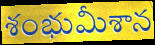
శంభుమీశాన